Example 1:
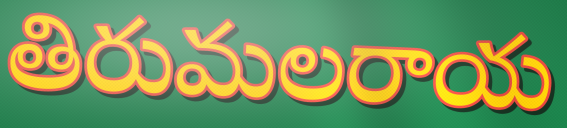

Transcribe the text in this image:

తిరుమలరాయ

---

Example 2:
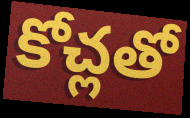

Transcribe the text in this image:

కోచ్లతో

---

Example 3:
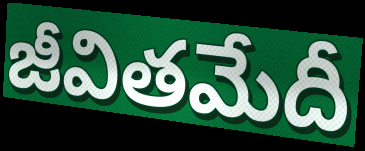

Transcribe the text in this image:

జీవితమేదీ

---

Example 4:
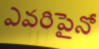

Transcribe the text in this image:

ఎవరిపైనో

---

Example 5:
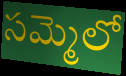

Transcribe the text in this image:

సమ్మెలో